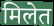
मिलेत